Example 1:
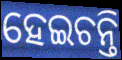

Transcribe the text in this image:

ହେଇଚନ୍ତି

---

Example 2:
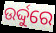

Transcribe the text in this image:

ଉର୍ଦ୍ଦୁରେ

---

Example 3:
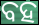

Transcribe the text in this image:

ବହ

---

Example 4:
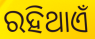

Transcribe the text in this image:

ରହିଥାଏଁ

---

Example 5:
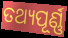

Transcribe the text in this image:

ତଥ୍ୟପୂର୍ଣ୍ଣ